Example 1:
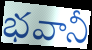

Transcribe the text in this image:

భవానీ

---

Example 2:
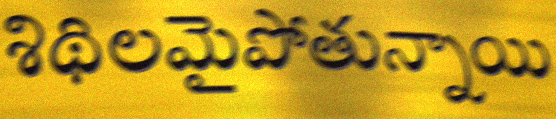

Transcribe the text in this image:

శిథిలమైపోతున్నాయి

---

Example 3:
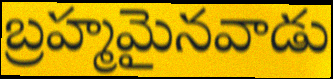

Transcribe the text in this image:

బ్రహ్మమైనవాడు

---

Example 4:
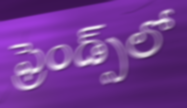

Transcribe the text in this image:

ఫ్రెండ్స్‌లో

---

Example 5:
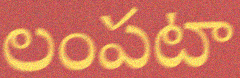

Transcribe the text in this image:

లంపటా